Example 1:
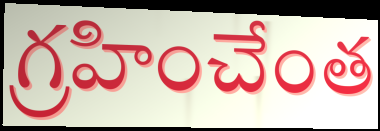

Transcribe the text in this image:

గ్రహించేంత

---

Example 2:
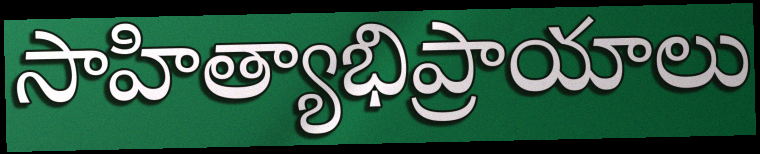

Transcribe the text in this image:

సాహిత్యాభిప్రాయాలు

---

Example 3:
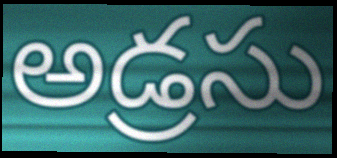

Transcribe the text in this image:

అడ్రసు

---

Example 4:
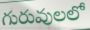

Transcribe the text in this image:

గురువులలో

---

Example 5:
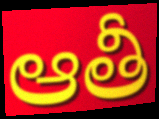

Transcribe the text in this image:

ఆతీ